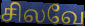
சிலவே